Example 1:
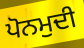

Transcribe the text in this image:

ਪੋਨਮੁਦੀ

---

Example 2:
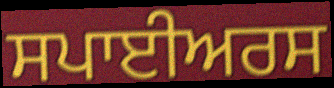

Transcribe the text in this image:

ਸਪਾਈਅਰਸ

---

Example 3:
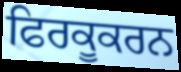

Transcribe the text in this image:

ਫਿਰਕੂਕਰਨ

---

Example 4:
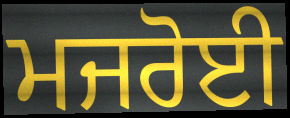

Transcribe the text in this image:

ਮਜਰੋਈ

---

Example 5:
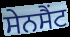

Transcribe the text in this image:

ਸੇਨਸੈਂਟ